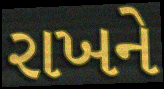
રાખને